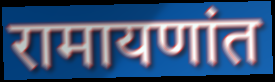
रामायणांत